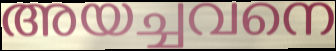
അയച്ചവനെ